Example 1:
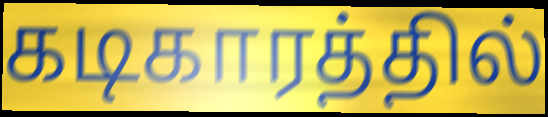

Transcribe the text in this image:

கடிகாரத்தில்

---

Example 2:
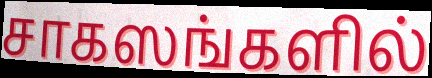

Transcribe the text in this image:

சாகஸங்களில்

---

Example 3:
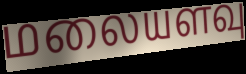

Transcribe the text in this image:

மலையளவு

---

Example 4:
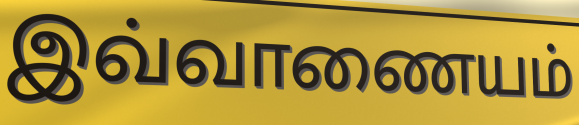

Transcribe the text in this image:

இவ்வாணையம்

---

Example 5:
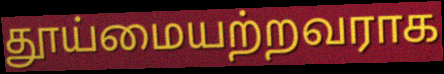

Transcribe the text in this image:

தூய்மையற்றவராக